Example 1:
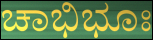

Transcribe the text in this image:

ಚಾಭಿಭೂಃ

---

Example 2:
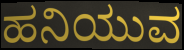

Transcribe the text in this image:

ಹನಿಯುವ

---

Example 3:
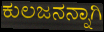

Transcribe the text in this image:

ಕುಲಜನನ್ನಾಗಿ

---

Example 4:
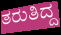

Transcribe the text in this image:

ತರುತಿದ್ದ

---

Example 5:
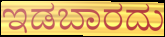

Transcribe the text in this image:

ಇಡಬಾರದು